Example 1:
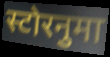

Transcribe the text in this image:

स्टोरनुमा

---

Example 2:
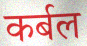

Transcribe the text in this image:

कर्बल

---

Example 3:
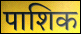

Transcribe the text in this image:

पाशिक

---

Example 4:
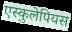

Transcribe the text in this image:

एस्कुलेपियस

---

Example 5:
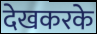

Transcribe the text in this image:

देखकरके